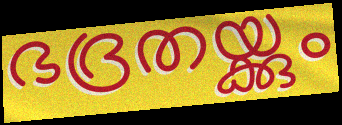
ഭദ്രതയ്ക്കും